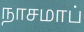
நாசமாப்